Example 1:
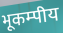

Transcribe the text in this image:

भूकम्पीय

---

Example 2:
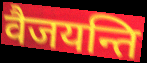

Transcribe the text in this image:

वैजयन्ति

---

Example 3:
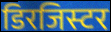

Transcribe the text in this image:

डिरजिस्टर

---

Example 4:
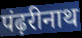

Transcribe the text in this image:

पंढ़रीनाथ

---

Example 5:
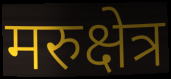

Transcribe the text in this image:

मरुक्षेत्र